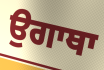
ਉਗਾਥਾ